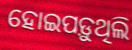
ହୋଇପଡ଼ୁଥିଲି